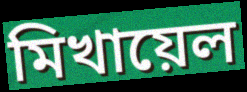
মিখায়েল